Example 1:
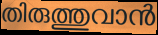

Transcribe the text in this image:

തിരുത്തുവാൻ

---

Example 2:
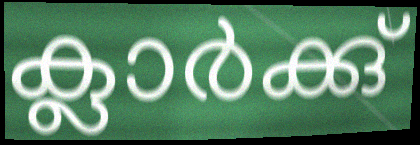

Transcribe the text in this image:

ക്ലാർക്കു്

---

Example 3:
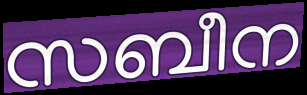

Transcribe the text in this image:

സബീന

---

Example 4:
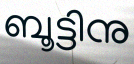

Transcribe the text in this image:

ബൂട്ടിനു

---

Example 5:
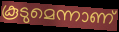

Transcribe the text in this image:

കൂടുമെന്നാണ്